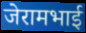
जेरामभाई